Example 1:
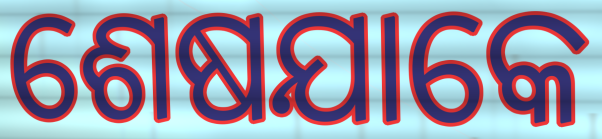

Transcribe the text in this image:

ଶେଷଯାକେ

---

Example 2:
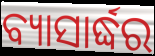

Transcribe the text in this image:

ବ୍ୟାସାର୍ଦ୍ଧର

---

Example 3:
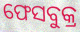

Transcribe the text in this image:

ଫେସବୁକ୍ର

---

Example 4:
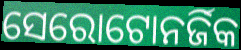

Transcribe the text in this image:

ସେରୋଟୋନର୍ଜିକ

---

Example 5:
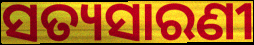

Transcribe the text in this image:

ସତ୍ୟସାରଣୀ